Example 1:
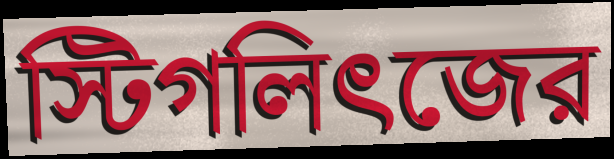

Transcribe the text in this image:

স্টিগলিৎজের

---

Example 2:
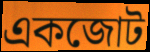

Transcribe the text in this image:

একজোট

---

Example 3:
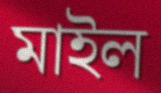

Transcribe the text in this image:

মাইল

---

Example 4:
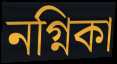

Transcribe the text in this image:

নগ্নিকা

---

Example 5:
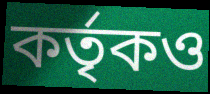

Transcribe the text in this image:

কর্তৃকও